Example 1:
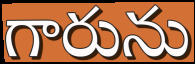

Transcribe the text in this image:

గారును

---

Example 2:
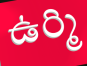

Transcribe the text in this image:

ఉర్మి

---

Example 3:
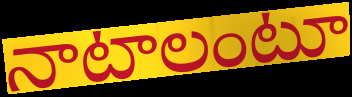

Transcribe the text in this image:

నాటాలంటూ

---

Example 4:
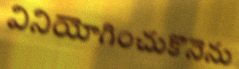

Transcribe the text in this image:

వినియోగించుకొనెను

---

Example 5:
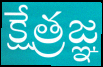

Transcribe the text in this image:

క్షేత్రజ్ఞ